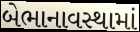
બેભાનાવસ્થામાં